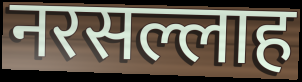
नरसल्लाह